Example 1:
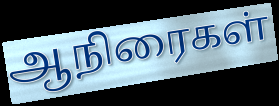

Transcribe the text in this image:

ஆநிரைகள்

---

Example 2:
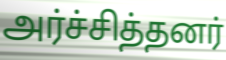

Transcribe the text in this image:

அர்ச்சித்தனர்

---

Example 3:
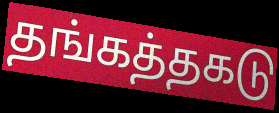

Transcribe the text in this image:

தங்கத்தகடு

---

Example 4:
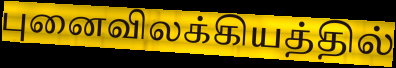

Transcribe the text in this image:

புனைவிலக்கியத்தில்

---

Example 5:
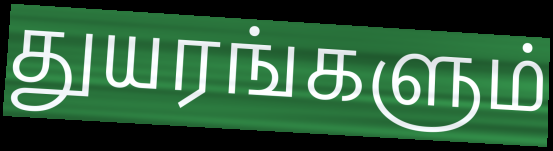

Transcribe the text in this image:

துயரங்களும்